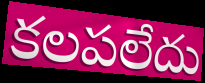
కలపలేదు